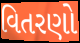
વિતરણો